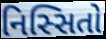
નિસ્સિતો